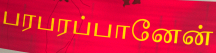
பரபரப்பானேன்